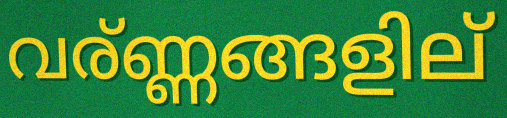
വര്ണ്ണങ്ങളില്